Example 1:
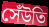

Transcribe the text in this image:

সেঁউতি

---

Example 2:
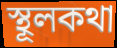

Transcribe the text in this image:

স্থূলকথা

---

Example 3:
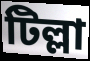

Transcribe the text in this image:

টিল্লা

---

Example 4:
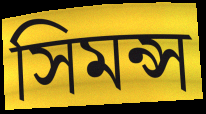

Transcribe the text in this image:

সিমন্স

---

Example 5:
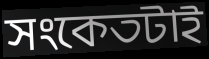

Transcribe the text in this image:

সংকেতটাই